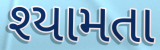
શ્યામતા